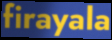
firayala